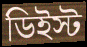
ডিইস্ট